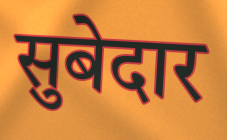
सुबेदार